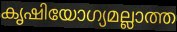
കൃഷിയോഗ്യമല്ലാത്ത